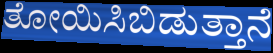
ತೋಯಿಸಿಬಿಡುತ್ತಾನೆ